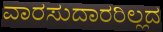
ವಾರಸುದಾರರಿಲ್ಲದ